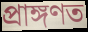
প্ৰাঙ্গণত